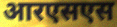
आरएसएस